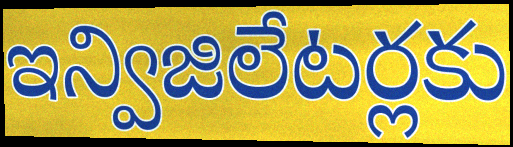
ఇన్విజిలేటర్లకు